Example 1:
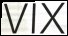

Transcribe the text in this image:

VIX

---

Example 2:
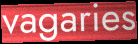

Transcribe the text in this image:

vagaries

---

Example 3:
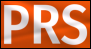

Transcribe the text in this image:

PRS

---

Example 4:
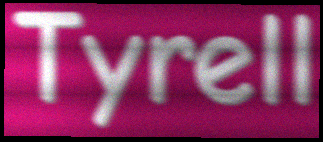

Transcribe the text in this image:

Tyrell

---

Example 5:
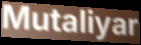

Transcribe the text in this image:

Mutaliyar